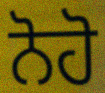
ਨੋਹੋ